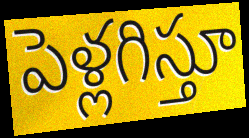
పెళ్లగిస్తూ